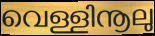
വെള്ളിനൂലു